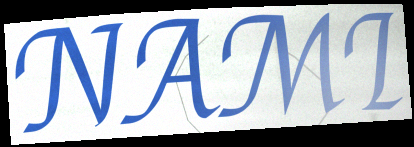
NAMI